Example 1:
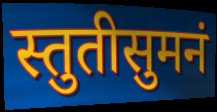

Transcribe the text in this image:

स्तुतीसुमनं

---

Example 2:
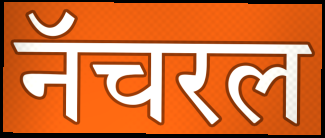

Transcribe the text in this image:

नॅचरल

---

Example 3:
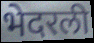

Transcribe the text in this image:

भेदरली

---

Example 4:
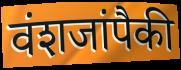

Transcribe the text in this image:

वंशजांपैकी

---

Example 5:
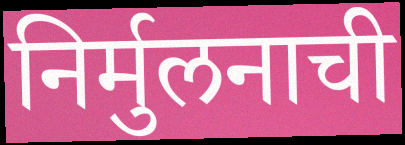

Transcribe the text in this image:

निर्मुलनाची